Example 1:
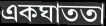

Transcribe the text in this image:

একঘাততা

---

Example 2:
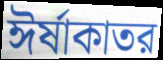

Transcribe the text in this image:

ঈর্ষাকাতর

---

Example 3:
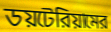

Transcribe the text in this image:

ডয়টেরিয়ামের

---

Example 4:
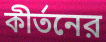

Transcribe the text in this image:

কীর্তনের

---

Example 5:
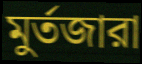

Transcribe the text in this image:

মুর্তজারা